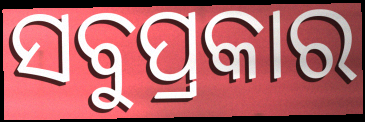
ସବୁପ୍ରକାର